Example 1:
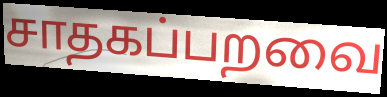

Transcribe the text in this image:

சாதகப்பறவை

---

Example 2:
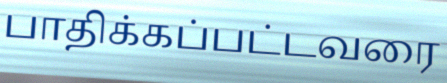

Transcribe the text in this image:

பாதிக்கப்பட்டவரை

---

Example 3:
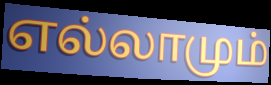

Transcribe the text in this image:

எல்லாமும்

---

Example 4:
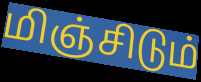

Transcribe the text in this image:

மிஞ்சிடும்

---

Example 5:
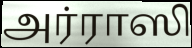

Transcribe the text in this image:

அர்ராஸி